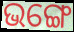
ଭଙ୍ଗେ